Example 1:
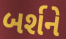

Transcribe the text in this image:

બર્શને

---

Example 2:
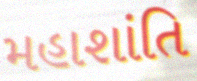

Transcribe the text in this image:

મહાશાંતિ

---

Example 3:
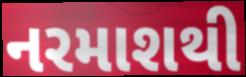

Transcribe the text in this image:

નરમાશથી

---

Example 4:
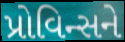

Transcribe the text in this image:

પ્રોવિન્સને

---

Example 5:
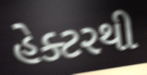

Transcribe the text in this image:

હેક્ટરથી